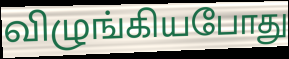
விழுங்கியபோது